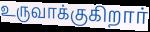
உருவாக்குகிறார்